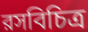
রসবিচিত্র